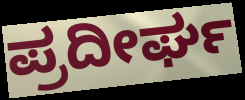
ಪ್ರದೀರ್ಘ